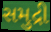
સમુદ્રી